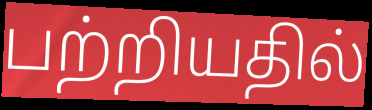
பற்றியதில்